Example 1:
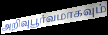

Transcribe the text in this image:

அறிவுபூர்வமாகவும்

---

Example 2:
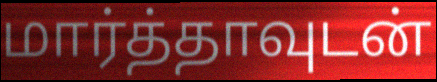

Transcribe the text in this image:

மார்த்தாவுடன்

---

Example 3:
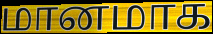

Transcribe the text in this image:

மானமாக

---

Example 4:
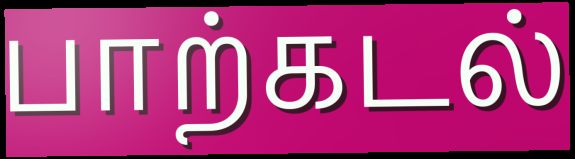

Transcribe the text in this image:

பாற்கடல்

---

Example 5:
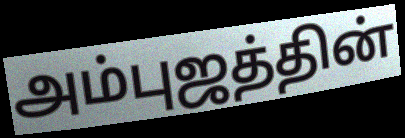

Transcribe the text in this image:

அம்புஜத்தின்